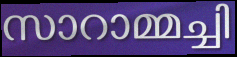
സാറാമ്മച്ചി